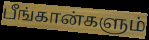
பீங்கான்களும்